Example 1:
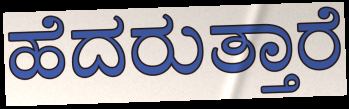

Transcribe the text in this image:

ಹೆದರುತ್ತಾರೆ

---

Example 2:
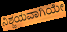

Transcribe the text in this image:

ನಿಶ್ಚಯವಾಗಿಯೇ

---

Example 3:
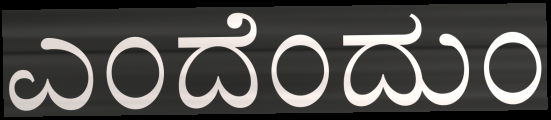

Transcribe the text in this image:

ಎಂದೆಂದುಂ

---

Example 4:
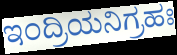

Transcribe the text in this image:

ಇಂದ್ರಿಯನಿಗ್ರಹಃ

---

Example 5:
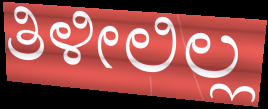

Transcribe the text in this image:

ತಿಳೀಲಿಲ್ಲ